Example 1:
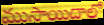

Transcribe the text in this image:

ముసాయిదాలో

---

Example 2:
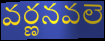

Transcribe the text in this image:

వర్ణనవలె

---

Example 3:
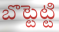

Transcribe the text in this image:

బొట్టెట్టి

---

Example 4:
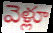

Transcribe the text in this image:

వెళ్లూ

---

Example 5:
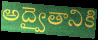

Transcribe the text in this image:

అద్వైతానికి